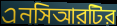
এনসিআরটির